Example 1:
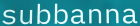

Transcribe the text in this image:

subbanna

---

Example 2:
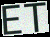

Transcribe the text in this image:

ET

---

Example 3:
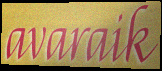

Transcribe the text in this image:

avaraik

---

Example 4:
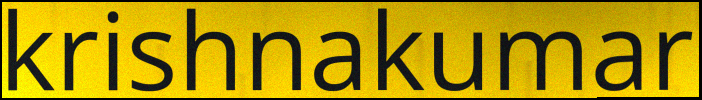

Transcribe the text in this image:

krishnakumar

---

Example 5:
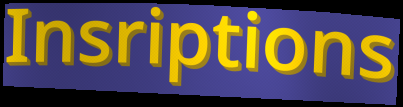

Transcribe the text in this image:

Insriptions